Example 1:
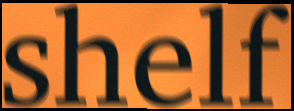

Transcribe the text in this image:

shelf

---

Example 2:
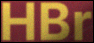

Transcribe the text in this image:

HBr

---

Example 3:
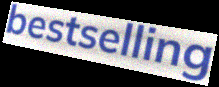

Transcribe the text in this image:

bestselling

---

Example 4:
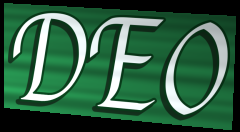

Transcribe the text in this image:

DEO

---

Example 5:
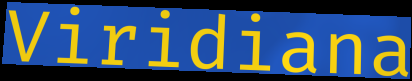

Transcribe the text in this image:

Viridiana